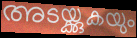
അടയ്ക്കുകയും